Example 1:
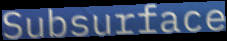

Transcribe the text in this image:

Subsurface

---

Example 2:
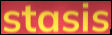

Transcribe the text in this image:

stasis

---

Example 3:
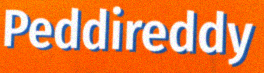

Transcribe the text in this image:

Peddireddy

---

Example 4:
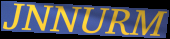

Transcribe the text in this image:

JNNURM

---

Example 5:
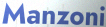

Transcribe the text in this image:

Manzoni